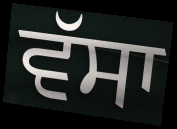
ਵੱਸਾ